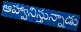
ఆహ్వానిస్తున్నాడు